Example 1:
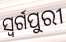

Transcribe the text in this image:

ସ୍ଵର୍ଗପୁରୀ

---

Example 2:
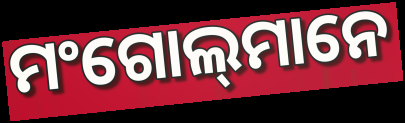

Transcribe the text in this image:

ମଂଗୋଲ୍‍ମାନେ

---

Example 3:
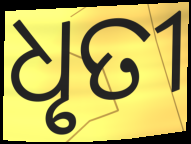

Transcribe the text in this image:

ଧୃତୀ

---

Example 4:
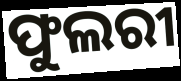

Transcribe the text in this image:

ଫୁଲରୀ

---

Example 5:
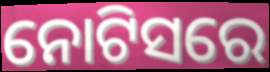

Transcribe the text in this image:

ନୋଟିସରେ